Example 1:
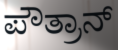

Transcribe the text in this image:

ಪೌತ್ರಾನ್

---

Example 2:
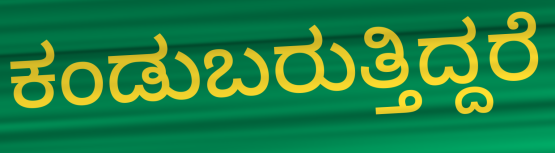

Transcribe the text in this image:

ಕಂಡುಬರುತ್ತಿದ್ದರೆ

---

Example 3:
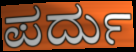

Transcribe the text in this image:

ಪರ್ದು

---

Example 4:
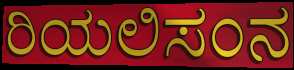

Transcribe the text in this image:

ರಿಯಲಿಸಂನ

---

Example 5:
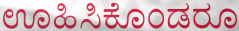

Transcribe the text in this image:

ಊಹಿಸಿಕೊಂಡರೂ